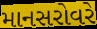
માનસરોવરે